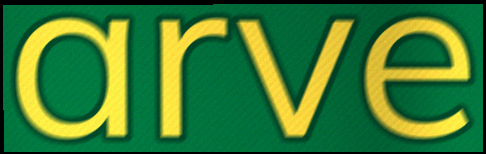
arve